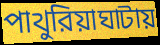
পাথুরিয়াঘাটায়